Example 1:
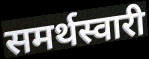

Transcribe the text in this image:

समर्थस्वारी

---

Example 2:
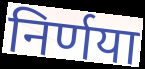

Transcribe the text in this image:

निर्णया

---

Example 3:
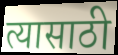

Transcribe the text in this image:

त्यासाठी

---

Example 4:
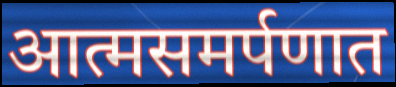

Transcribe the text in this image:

आत्मसमर्पणात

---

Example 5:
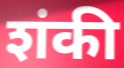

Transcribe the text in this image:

शंकी